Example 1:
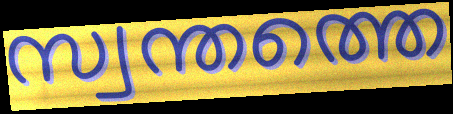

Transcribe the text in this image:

സ്വന്തത്തെ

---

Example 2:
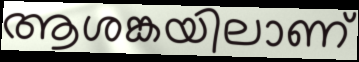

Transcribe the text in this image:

ആശങ്കയിലാണ്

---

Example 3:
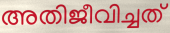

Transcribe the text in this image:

അതിജീവിച്ചത്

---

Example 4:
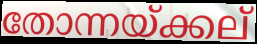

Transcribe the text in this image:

തോന്നയ്ക്കല്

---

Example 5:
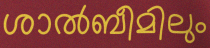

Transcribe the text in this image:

ശാൽബീമിലും